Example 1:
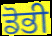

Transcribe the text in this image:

ਡੋਭੀ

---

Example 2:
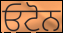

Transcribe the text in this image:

ਓਟੋਨ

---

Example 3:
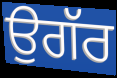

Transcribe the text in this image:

ਉਗੱਰ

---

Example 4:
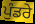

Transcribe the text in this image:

ਪੁੰਡਰੇ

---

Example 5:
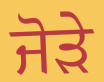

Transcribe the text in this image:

ਜੋਡ਼ੇ